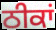
ਠੀਕਾਂ